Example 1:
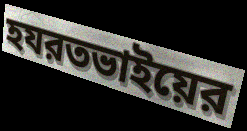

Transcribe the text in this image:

হযরতভাইয়ের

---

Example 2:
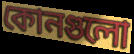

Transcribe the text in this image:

কোনগুলো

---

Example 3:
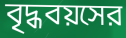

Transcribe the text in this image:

বৃদ্ধবয়সের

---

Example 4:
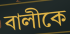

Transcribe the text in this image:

বালীকে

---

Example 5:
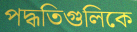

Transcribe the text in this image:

পদ্ধতিগুলিকে